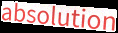
absolution